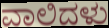
ವಾಲಿದಳು